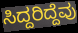
ಸಿದ್ದರಿದ್ದೆವು